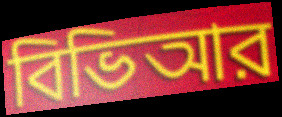
বিভিআর